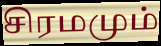
சிரமமும்